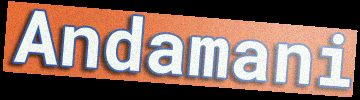
Andamani